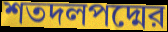
শতদলপদ্মের